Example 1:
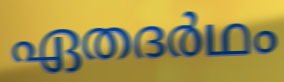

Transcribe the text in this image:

ഏതദർഥം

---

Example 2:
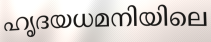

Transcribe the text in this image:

ഹൃദയധമനിയിലെ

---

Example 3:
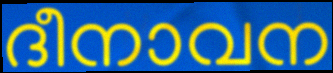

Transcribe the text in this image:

ദീനാവന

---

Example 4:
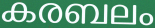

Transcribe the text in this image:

കരബലം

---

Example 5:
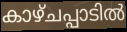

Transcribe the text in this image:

കാഴ്ചപ്പാടിൽ